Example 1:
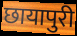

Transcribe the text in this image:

छायापुरी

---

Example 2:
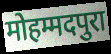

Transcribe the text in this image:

मोहम्मदपुरा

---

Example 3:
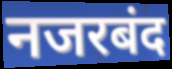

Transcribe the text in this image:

नजरबंद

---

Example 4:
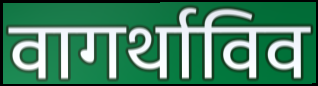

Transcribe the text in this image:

वागर्थाविव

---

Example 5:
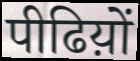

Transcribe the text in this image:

पीढिय़ों